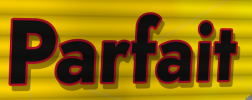
Parfait